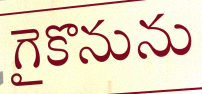
గైకొనును